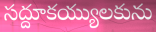
సద్దూకయ్యులకును